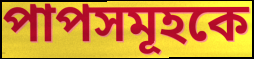
পাপসমূহকে